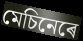
মেচিনেৰে